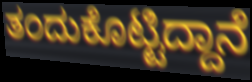
ತಂದುಕೊಟ್ಟಿದ್ದಾನೆ